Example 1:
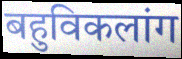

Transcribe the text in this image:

बहुविकलांग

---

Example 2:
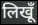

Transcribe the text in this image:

लिखूँ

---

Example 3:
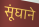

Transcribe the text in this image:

सूंघाने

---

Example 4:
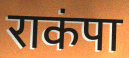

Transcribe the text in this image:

राकंपा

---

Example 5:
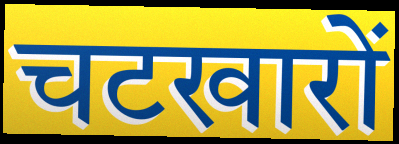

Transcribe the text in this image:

चटखारों